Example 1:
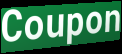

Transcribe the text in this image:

Coupon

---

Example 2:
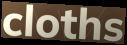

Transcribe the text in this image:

cloths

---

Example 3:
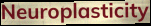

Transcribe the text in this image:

Neuroplasticity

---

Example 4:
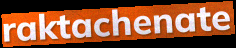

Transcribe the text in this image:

raktachenate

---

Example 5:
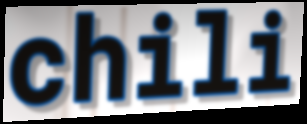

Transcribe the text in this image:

chili